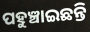
ପହୁଞ୍ଚାଇଛନ୍ତି